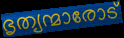
ഭൃത്യന്മാരോട്